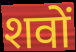
शवों